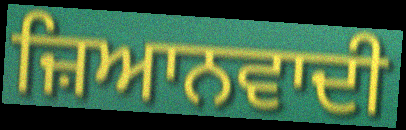
ਜ਼ਿਆਨਵਾਦੀ